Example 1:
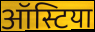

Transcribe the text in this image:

ऑस्टिया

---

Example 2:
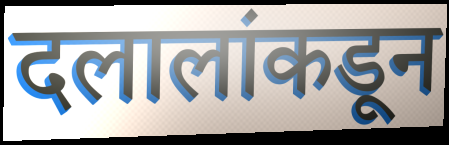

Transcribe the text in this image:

दलालांकडून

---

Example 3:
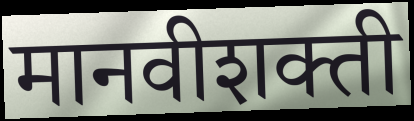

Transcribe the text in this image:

मानवीशक्ती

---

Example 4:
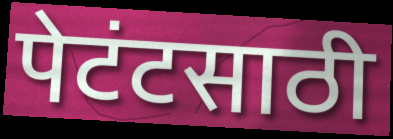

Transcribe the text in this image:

पेटंटसाठी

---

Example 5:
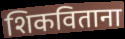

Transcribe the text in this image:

शिकविताना